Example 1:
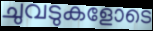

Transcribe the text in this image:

ചുവടുകളോടെ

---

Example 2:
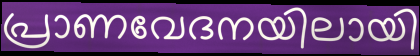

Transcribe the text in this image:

പ്രാണവേദനയിലായി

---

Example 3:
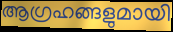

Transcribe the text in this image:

ആഗ്രഹങ്ങളുമായി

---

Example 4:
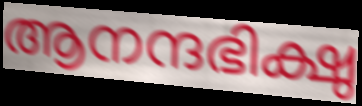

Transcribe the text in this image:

ആനന്ദഭിക്ഷു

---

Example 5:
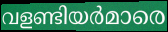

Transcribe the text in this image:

വളണ്ടിയർമാരെ